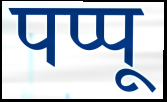
पप्‍पू